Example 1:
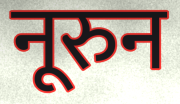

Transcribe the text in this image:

नूरुन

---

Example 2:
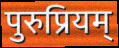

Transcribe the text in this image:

पुरुप्रियम्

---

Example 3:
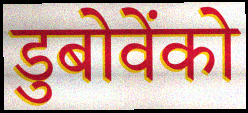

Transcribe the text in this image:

डुबोवेंको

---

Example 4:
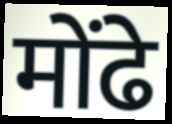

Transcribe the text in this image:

मोंढे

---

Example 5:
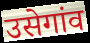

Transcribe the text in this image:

उसेगांव